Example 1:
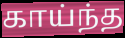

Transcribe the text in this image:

காய்ந்த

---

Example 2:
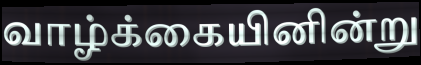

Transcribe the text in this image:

வாழ்க்கையினின்று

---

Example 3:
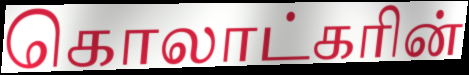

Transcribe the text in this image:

கொலாட்கரின்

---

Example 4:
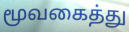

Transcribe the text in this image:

மூவகைத்து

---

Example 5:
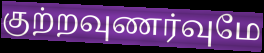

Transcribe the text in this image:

குற்றவுணர்வுமே